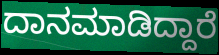
ದಾನಮಾಡಿದ್ದಾರೆ